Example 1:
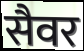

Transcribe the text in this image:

सैवर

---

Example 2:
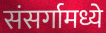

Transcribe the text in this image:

संसर्गामध्ये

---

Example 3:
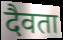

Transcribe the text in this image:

दैवता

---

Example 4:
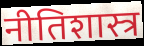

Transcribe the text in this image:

नीतिशास्त्र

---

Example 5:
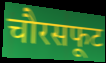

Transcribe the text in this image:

चौरसफूट